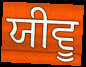
ਯੀਵੂ